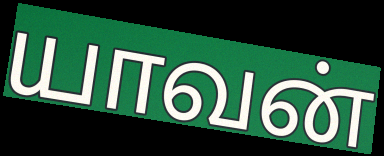
யாவன்